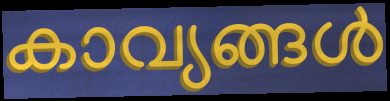
കാവ്യങ്ങൾ